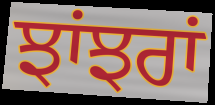
ਝਾਂਝਰਾਂ